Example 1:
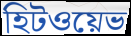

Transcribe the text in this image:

হিটওয়েভ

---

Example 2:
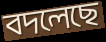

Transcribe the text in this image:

বদলেছে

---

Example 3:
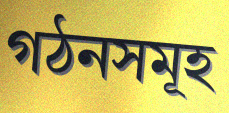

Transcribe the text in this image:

গঠনসমূহ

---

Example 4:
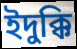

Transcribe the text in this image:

ইদুক্কি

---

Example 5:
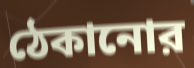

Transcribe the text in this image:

ঠেকানোর